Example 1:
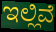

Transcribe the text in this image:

ಇಲ್ಲಿವೆ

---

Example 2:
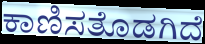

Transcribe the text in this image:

ಕಾಣಿಸತೊಡಗಿದೆ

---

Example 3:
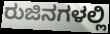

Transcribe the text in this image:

ರುಜಿನಗಳಲ್ಲಿ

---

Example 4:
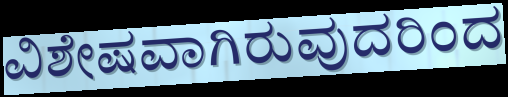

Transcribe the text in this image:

ವಿಶೇಷವಾಗಿರುವುದರಿಂದ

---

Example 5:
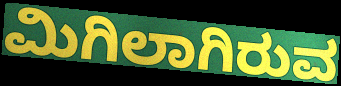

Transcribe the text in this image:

ಮಿಗಿಲಾಗಿರುವ